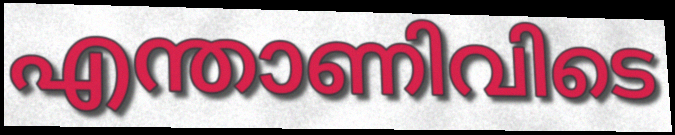
എന്താണിവിടെ